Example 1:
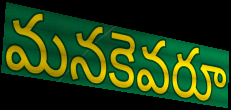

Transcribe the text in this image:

మనకెవరూ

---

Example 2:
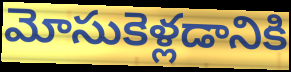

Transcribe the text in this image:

మోసుకెళ్లడానికి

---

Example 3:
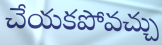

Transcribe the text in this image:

చేయకపోవచ్చు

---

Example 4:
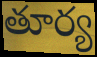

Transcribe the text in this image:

తూర్య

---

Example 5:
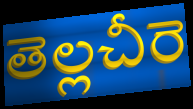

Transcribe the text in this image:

తెల్లచీరె